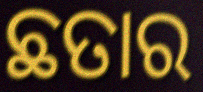
ଛତାର